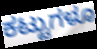
ಕಟ್ಟುಗಳೂ